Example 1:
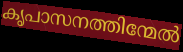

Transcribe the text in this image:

കൃപാസനത്തിന്മേൽ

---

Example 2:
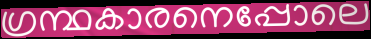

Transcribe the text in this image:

ഗ്രന്ഥകാരനെപ്പോലെ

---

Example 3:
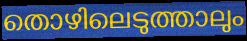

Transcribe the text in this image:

തൊഴിലെടുത്താലും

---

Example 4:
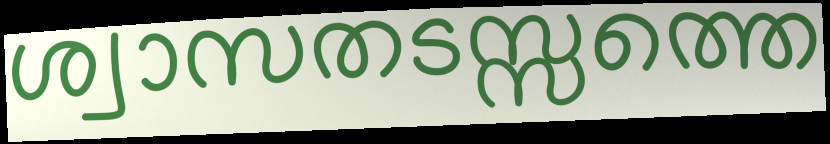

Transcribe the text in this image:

ശ്വാസതടസ്സത്തെ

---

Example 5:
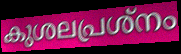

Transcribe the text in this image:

കുശലപ്രശ്നം